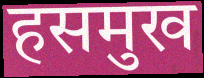
हसमुख